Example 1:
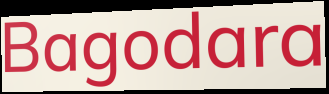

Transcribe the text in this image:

Bagodara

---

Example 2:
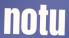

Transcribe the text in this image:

notu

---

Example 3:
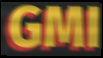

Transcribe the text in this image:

GMI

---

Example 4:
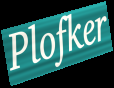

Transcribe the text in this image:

Plofker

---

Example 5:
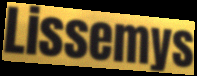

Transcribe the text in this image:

Lissemys